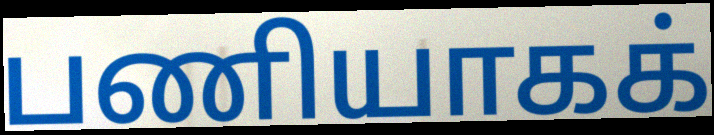
பணியாகக்